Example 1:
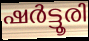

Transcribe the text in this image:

ഷർട്ടൂരി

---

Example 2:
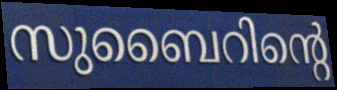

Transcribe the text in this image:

സുബൈറിന്റെ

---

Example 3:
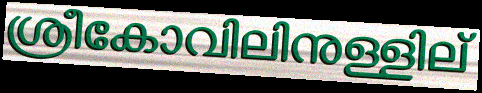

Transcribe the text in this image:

ശ്രീകോവിലിനുള്ളില്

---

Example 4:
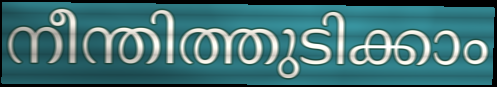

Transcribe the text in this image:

നീന്തിത്തുടിക്കാം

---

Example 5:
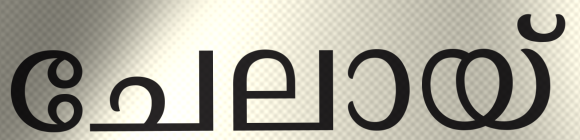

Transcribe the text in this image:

ചേലായ്